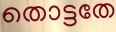
തൊട്ടതേ